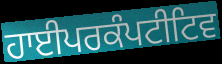
ਹਾਈਪਰਕੰਪਟੀਟਿਵ